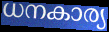
ധനകാര്യ